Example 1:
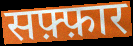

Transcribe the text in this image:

सफ़्फ़ार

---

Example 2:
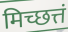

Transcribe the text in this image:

मिच्छत्तं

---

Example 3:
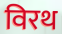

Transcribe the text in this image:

विरथ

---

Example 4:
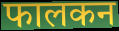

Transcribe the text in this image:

फालकन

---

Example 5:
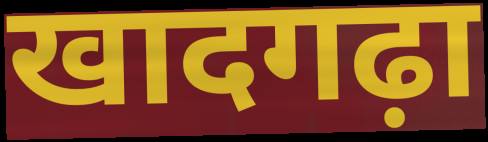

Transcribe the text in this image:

खादगढ़ा